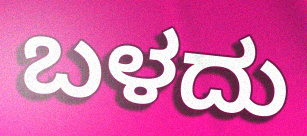
ಬಳದು